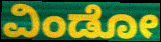
ವಿಂಡೋ